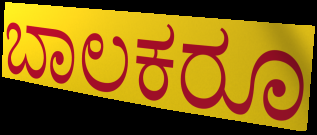
ಬಾಲಕರೂ